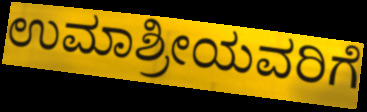
ಉಮಾಶ್ರೀಯವರಿಗೆ